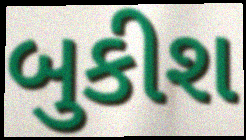
બુકીશ